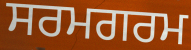
ਸਰਮਗਰਮ